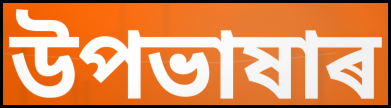
উপভাষাৰ